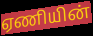
ஏணியின்